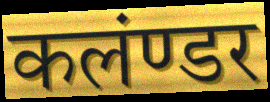
कलंण्डर